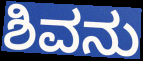
ಶಿವನು